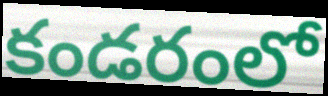
కండరంలో